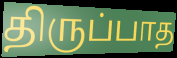
திருப்பாத